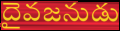
దైవజనుడు